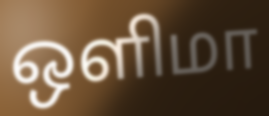
ஒளிமா